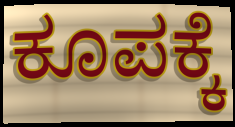
ಕೂಪಕ್ಕೆ